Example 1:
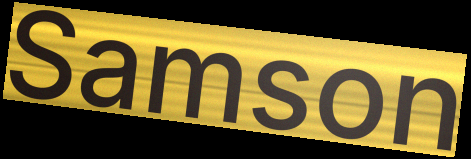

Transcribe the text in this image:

Samson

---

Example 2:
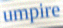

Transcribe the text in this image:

umpire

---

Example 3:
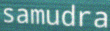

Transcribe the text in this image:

samudra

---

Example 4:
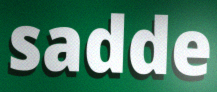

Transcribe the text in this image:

sadde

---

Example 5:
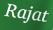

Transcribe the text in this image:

Rajat